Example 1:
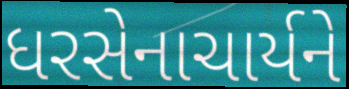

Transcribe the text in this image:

ધરસેનાચાર્યને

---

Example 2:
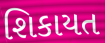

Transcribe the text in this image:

શિકાયત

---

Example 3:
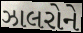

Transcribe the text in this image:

ઝાલરોને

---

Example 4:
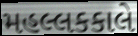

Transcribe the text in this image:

મહલ્લકકાલે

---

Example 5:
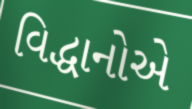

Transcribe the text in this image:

વિદ્ધાનોએ